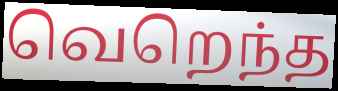
வெறெந்த